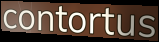
contortus